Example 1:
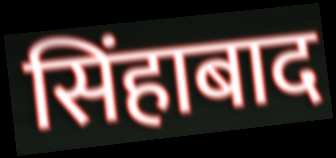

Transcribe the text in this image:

सिंहाबाद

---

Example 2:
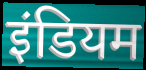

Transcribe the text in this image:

इंडियम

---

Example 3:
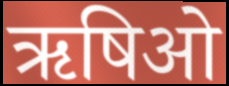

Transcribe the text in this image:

ऋषिओ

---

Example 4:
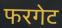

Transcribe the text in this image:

फरगेट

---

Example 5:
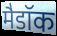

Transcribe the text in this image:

मैडॉक